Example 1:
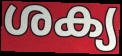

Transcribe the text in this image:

ശക്യ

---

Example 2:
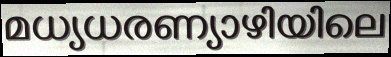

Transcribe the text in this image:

മധ്യധരണ്യാഴിയിലെ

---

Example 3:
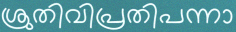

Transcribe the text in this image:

ശ്രുതിവിപ്രതിപന്നാ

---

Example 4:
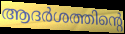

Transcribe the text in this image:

ആദർശത്തിന്റെ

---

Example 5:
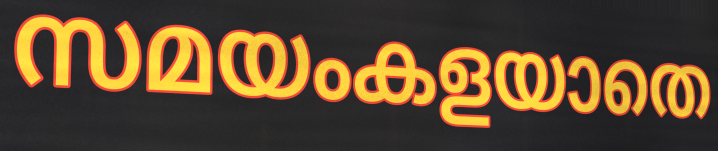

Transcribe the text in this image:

സമയംകളയാതെ